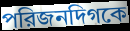
পরিজনদিগকে